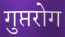
गुप्तरोग